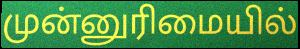
முன்னுரிமையில்